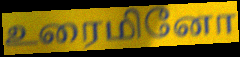
உரைமினோ